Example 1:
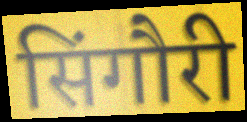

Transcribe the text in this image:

सिंगौरी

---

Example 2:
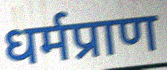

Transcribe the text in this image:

धर्मप्राण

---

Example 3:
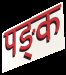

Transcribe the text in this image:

पङ्क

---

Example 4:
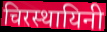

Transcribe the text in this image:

चिरस्थायिनी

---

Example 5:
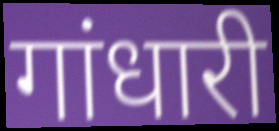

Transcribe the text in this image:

गांधारी